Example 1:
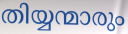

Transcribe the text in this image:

തിയ്യന്മാരും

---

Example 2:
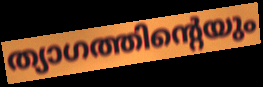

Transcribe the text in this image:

ത്യാഗത്തിന്റെയും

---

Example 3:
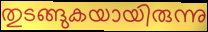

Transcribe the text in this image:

തുടങ്ങുകയായിരുന്നു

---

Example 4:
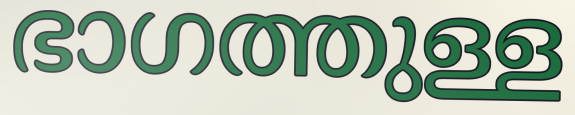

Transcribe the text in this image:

ഭാഗത്തുള്ള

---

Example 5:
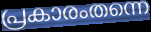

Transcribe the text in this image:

പ്രകാരംതന്നെ